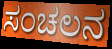
ಸಂಚಲನ